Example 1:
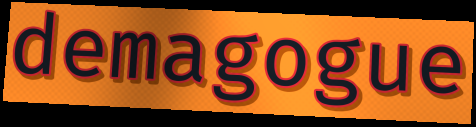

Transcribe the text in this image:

demagogue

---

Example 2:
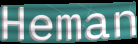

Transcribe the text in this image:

Heman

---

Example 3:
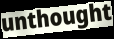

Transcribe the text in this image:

unthought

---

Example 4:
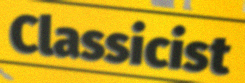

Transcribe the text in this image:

Classicist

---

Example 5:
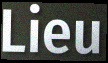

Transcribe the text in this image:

Lieu